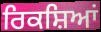
ਰਿਕਸ਼ਿਆਂ